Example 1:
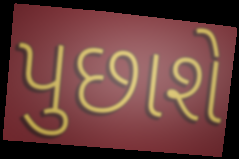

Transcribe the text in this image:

પુછાશે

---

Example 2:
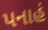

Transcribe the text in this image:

પનાહં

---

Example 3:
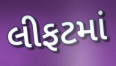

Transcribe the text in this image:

લીફટમાં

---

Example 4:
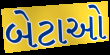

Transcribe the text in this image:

બેટાઓ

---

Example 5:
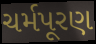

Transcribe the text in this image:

ચર્મપૂરણ